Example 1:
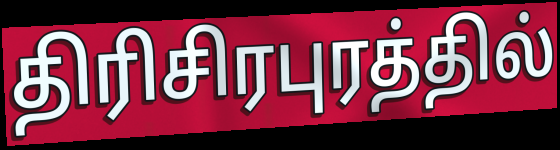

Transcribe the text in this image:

திரிசிரபுரத்தில்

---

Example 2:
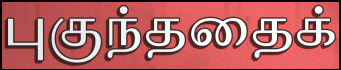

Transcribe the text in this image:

புகுந்ததைக்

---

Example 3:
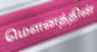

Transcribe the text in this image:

மௌனத்தின்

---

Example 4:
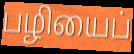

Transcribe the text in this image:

பழியைப்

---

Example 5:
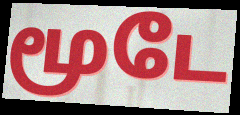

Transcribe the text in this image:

மூடே